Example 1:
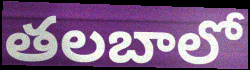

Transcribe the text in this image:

తలబాలో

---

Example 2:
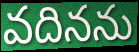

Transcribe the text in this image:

వదినను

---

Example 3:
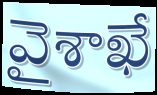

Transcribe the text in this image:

వైశాఖే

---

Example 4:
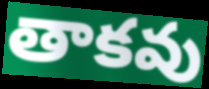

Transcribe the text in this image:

తాకవు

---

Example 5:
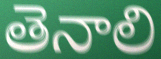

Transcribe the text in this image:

తెనాలి